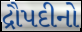
દ્રૌપદીનો